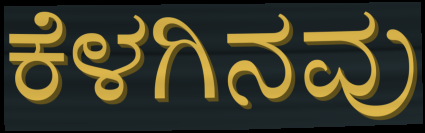
ಕೆಳಗಿನವು